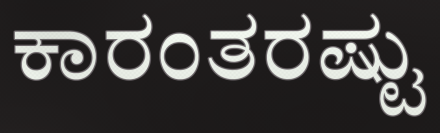
ಕಾರಂತರಷ್ಟು